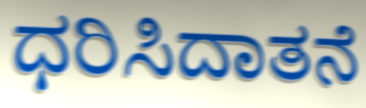
ಧರಿಸಿದಾತನೆ